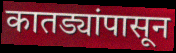
कातड्यांपासून